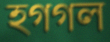
হগগল